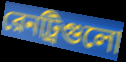
রেনট্রিগুলো